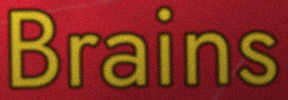
Brains